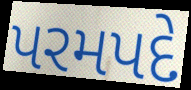
પરમપદે